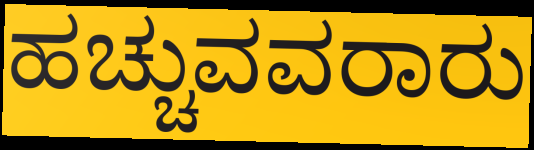
ಹಚ್ಚುವವರಾರು